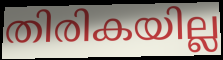
തിരികയില്ല